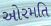
ઓરમતિ